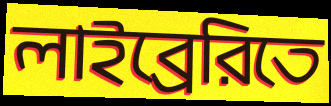
লাইব্রেরিতে